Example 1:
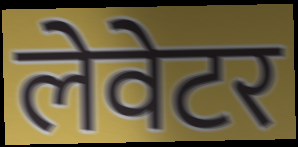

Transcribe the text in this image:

लेवेटर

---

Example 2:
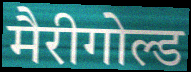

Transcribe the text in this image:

मैरीगोल्ड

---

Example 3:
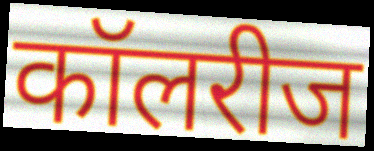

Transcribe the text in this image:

कॉलरीज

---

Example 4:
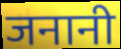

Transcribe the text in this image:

जनानी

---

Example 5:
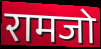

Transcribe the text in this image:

रामजो